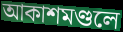
আকাশমণ্ডলে